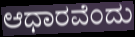
ಆಧಾರವೆಂದು